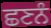
ਛਣਨੰ